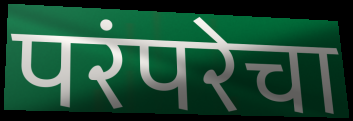
परंपरेचा